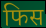
फिस